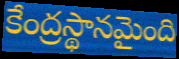
కేంద్రస్థానమైంది